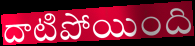
దాటిపోయింది